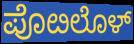
ಪೊೞಲೊಳ್